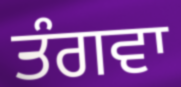
ਤੰਗਵਾ